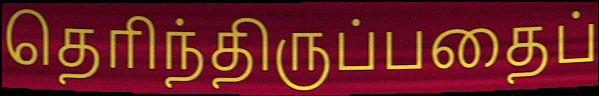
தெரிந்திருப்பதைப்